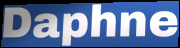
Daphne